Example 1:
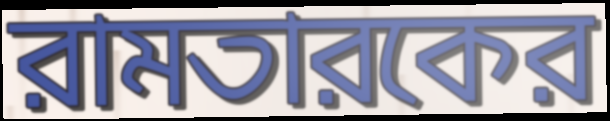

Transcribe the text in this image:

রামতারকের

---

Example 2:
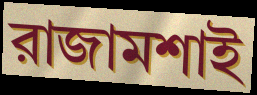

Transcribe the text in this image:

রাজামশাই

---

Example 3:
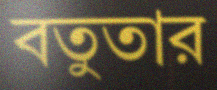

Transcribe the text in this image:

বতুতার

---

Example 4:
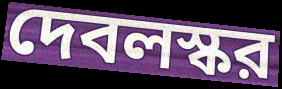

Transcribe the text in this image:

দেবলস্কর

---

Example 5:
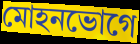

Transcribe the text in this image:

মোহনভোগে